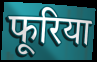
फूरिया